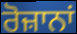
ਰੋਜ਼ਾਨਾਂ